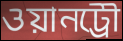
ওয়ানট্রৌ